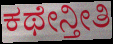
ಕಥೇನ್ತೀತಿ